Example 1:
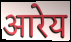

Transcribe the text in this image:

आरेय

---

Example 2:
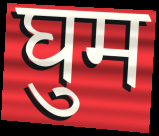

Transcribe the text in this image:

घुम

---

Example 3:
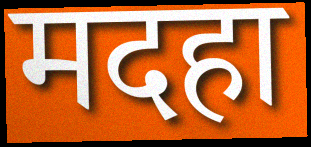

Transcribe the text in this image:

मदहा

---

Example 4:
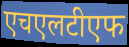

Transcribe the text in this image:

एचएलटीएफ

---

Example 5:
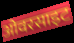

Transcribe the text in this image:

ओवरसाइट